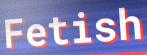
Fetish